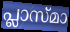
പ്ലാസ്മാ